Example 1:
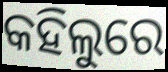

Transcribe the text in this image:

କହିଲୁରେ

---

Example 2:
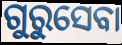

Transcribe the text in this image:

ଗୁରୁସେବା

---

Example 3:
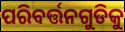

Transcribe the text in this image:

ପରିବର୍ତ୍ତନଗୁଡିକୁ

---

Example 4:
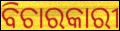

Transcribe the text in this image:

ବିଚାରକାରୀ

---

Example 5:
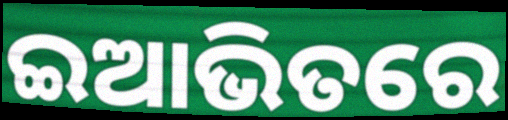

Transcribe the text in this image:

ଇଆଭିତରେ